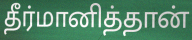
தீர்மானித்தான்